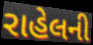
રાહેલની